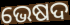
ଭେଷଦ